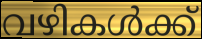
വഴികൾക്ക്